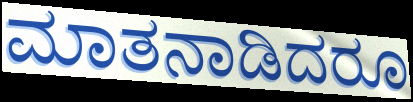
ಮಾತನಾಡಿದರೂ